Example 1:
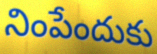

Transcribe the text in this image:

నింపేందుకు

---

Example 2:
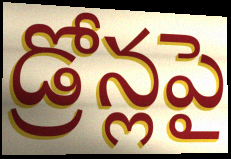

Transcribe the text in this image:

డ్రోన్లపై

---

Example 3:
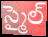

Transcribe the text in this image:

స్మైల్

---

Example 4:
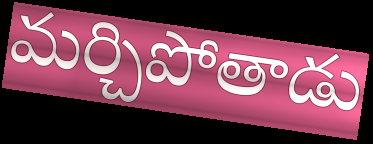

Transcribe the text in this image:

మర్చిపోతాడు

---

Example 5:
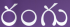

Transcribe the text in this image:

రంగు